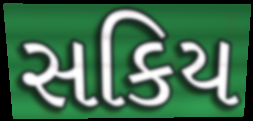
સકિય